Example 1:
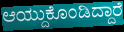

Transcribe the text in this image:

ಆಯ್ದುಕೊಂಡಿದ್ದಾರೆ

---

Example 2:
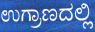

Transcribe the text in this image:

ಉಗ್ರಾಣದಲ್ಲಿ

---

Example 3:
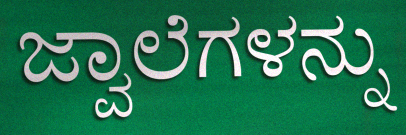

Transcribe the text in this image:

ಜ್ವಾಲೆಗಳನ್ನು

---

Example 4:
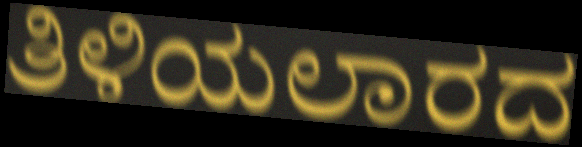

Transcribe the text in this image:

ತಿಳಿಯಲಾರದ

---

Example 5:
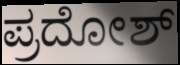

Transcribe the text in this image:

ಪ್ರದೋಶ್